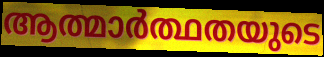
ആത്മാർത്ഥതയുടെ